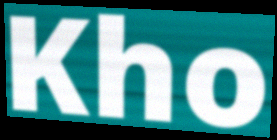
Kho